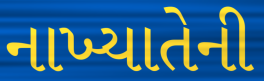
નાખ્યાતેની